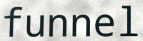
funnel